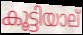
കൂട്ടിയാല്